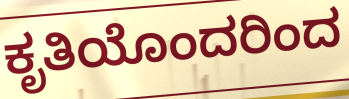
ಕೃತಿಯೊಂದರಿಂದ